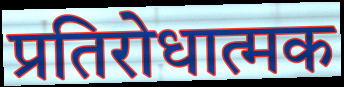
प्रतिरोधात्मक